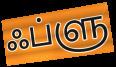
ஃப்ளு